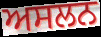
ਅਸਲਨ